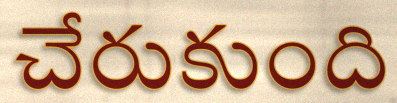
చేరుకుంది